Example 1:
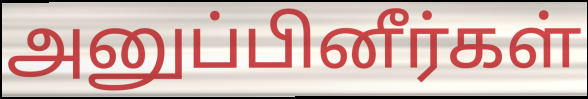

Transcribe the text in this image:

அனுப்பினீர்கள்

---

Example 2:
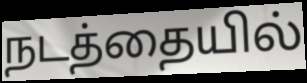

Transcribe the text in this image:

நடத்தையில்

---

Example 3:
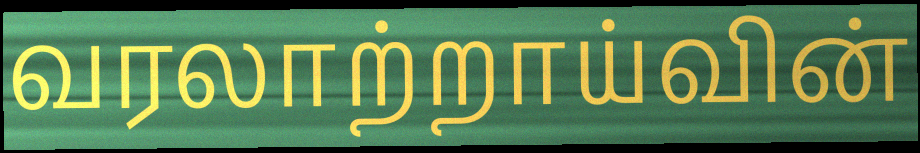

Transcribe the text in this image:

வரலாற்றாய்வின்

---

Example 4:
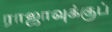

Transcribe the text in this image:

ராஜாவுக்குப்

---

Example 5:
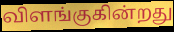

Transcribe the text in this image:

விளங்குகின்றது